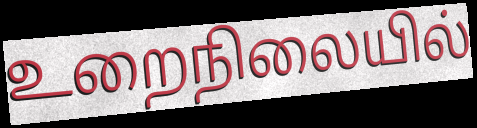
உறைநிலையில்